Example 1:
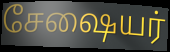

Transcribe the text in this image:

சேஷையர்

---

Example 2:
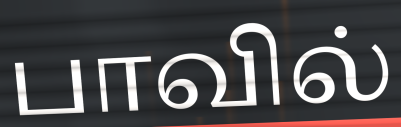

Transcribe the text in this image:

பாவில்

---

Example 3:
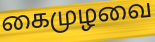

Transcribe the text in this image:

கைமுழவை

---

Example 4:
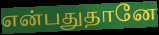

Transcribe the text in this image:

என்பதுதானே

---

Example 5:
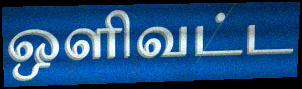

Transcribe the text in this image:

ஒளிவட்ட